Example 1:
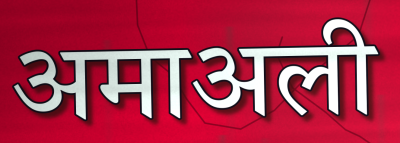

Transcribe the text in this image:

अमाअली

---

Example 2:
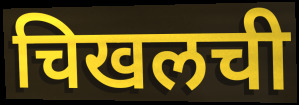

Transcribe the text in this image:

चिखलची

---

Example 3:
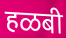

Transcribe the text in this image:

हळबी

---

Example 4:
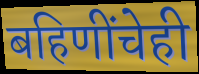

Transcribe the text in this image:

बहिणींचेही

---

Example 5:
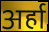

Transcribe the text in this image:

अर्हा